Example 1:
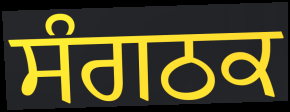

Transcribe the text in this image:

ਸੰਗਠਕ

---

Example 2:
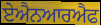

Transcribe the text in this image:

ਏਐਨਆਰਐਫ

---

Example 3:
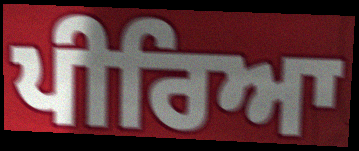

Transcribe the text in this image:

ਪੀਰਿਆ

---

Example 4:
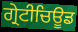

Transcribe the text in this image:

ਗ੍ਰੇਟੀਚਿਊਡ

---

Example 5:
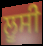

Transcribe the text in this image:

ਲੂਸੀ